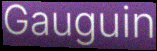
Gauguin